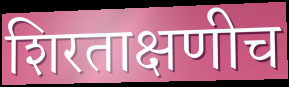
शिरताक्षणीच